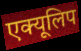
एक्यूलिप